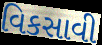
વિકસાવી